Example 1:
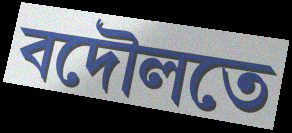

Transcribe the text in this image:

বদৌলতে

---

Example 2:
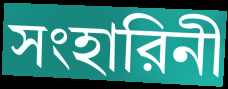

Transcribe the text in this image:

সংহারিনী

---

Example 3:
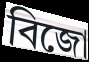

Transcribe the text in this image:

বিজো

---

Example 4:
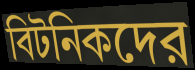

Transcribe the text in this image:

বিটনিকদের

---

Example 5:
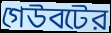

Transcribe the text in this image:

গেউবটের